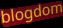
blogdom